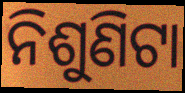
ନିଶୁଣିଟା